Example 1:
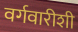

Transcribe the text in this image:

वर्गवारीशी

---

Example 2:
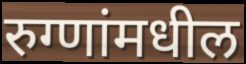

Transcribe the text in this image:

रुग्णांमधील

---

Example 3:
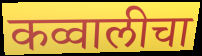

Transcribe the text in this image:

कव्वालीचा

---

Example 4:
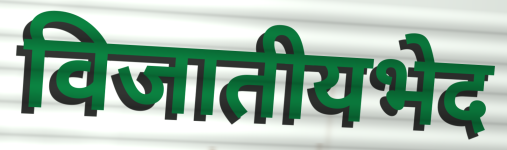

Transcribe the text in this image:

विजातीयभेद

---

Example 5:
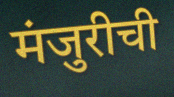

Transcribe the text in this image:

मंजुरीची